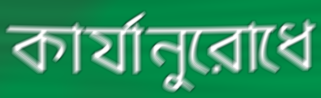
কার্যানুরোধে